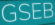
GSEB